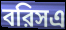
বরিসএ